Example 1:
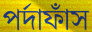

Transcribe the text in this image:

পর্দাফাঁস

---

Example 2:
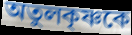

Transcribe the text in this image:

অতুলকৃষ্ণকে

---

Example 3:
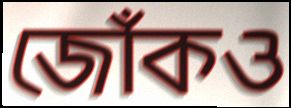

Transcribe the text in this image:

জোঁকও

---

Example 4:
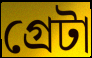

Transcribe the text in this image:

গ্রেটা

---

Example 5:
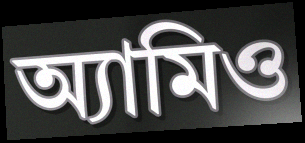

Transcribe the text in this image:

অ্যামিও